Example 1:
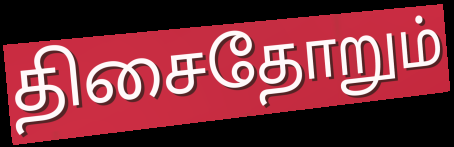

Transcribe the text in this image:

திசைதோறும்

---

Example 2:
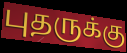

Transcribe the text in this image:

புதருக்கு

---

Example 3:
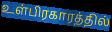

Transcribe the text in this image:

உள்பிரகாரத்தில்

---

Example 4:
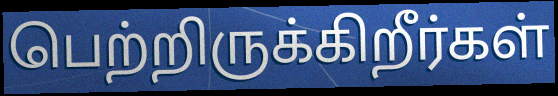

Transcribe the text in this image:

பெற்றிருக்கிறீர்கள்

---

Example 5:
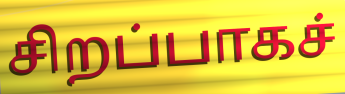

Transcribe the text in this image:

சிறப்பாகச்